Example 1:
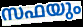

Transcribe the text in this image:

സഫയും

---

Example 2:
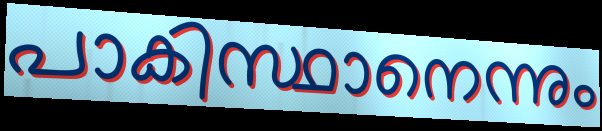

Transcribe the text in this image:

പാകിസ്ഥാനെന്നും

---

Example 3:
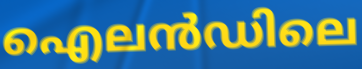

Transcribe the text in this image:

ഐലൻഡിലെ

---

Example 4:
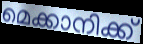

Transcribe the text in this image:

മെക്കാനിക്ക്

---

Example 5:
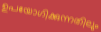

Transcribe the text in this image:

ഉപയോഗിക്കുന്നതിലും